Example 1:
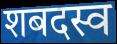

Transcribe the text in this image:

शबदस्व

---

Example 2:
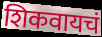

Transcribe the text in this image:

शिकवायचं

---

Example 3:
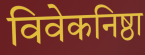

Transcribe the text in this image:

विवेकनिष्ठा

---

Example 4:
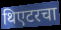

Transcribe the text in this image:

थिएटरचा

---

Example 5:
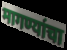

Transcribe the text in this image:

मागण्यांचा